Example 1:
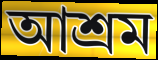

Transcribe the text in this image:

আশ্রম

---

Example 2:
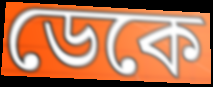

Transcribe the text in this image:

ডেকে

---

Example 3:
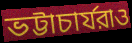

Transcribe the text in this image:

ভট্টাচার্যরাও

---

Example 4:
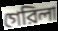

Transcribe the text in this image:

গেরিলা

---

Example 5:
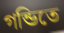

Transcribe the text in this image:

গন্ডিতে